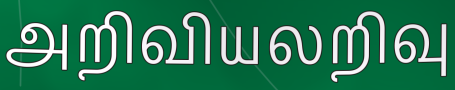
அறிவியலறிவு